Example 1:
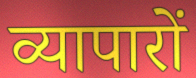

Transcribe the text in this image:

व्यापारों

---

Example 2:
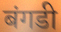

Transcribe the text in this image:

बंगडी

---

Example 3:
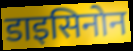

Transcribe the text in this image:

डाइसिनोन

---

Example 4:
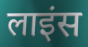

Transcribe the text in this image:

लाइंस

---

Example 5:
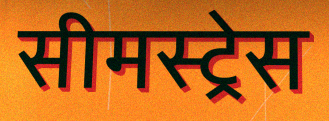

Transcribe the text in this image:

सीमस्ट्रेस